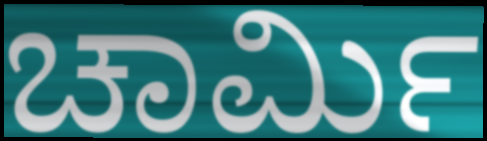
ಚಾರ್ಮಿ